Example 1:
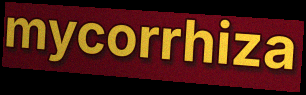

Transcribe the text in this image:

mycorrhiza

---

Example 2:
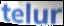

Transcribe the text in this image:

telur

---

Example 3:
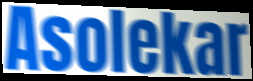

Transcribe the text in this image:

Asolekar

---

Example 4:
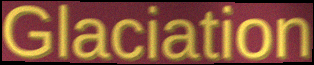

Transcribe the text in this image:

Glaciation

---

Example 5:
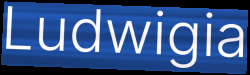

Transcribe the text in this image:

Ludwigia